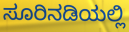
ಸೂರಿನಡಿಯಲ್ಲಿ